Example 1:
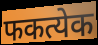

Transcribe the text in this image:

फकत्येक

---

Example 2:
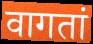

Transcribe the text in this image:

वागतां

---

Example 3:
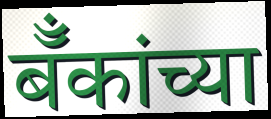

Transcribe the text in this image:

बॅँकांच्या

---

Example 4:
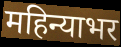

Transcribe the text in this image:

महिन्याभर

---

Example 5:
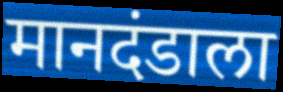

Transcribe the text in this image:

मानदंडाला